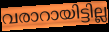
വരാറായിട്ടില്ല